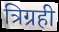
त्रिग्रही